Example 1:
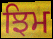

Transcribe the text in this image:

ਝਿਮ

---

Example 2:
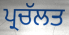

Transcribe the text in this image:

ਪ੍ਰਚੱਲਤ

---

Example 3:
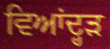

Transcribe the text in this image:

ਵਿਆਂਦ੍ਹੜ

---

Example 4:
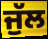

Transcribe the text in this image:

ਜੁੱਲ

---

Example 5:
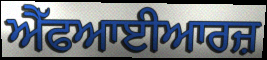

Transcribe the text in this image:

ਐੱਫਆਈਆਰਜ਼